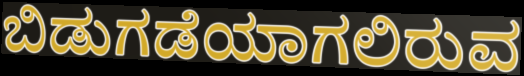
ಬಿಡುಗಡೆಯಾಗಲಿರುವ